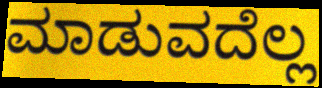
ಮಾಡುವದೆಲ್ಲ